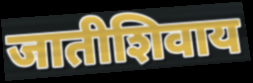
जातीशिवाय